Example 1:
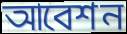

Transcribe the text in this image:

আবেশন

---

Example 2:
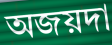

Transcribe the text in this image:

অজয়দা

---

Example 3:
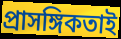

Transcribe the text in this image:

প্রাসঙ্গিকতাই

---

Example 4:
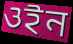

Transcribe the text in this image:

ওইন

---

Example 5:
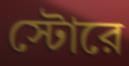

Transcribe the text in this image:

স্টোরে